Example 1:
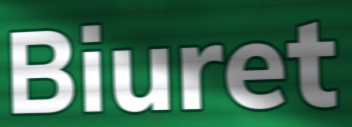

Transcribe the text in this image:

Biuret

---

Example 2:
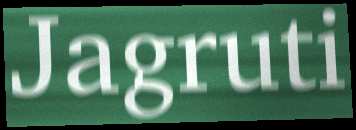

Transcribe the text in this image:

Jagruti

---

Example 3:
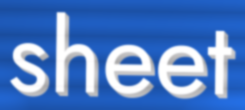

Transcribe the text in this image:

sheet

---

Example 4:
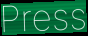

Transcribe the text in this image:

Press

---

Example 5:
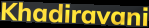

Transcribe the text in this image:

Khadiravani